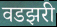
वडझरी